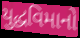
યુદ્ધવિમાનો